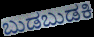
ಬುಡಬುಡಕಿ